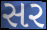
સર